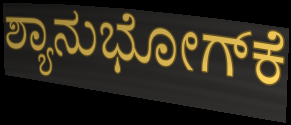
ಶ್ಯಾನುಭೋಗ್‌ಕೆ